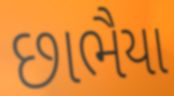
છાભૈયા